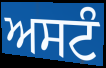
ਅਸਟੰ